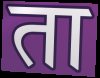
ता